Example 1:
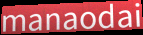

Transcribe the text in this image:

manaodai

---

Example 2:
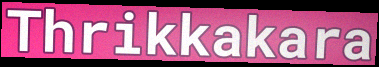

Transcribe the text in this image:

Thrikkakara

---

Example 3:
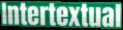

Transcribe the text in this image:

Intertextual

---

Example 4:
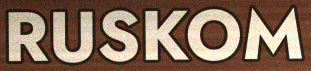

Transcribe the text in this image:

RUSKOM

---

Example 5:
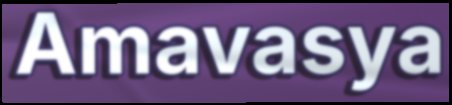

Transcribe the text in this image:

Amavasya